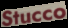
Stucco